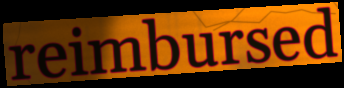
reimbursed